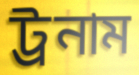
ট্রনাম